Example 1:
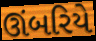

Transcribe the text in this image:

ઊંબરિયે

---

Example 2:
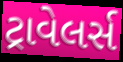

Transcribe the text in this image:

ટ્રાવેલર્સ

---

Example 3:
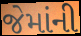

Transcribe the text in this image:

જેમાંની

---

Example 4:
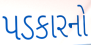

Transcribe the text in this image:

પડકારનો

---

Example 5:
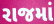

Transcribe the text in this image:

રાજમાં